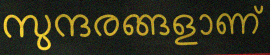
സുന്ദരങ്ങളാണ്